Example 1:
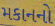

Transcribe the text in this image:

મકાનનો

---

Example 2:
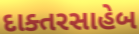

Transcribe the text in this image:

દાક્તરસાહેબ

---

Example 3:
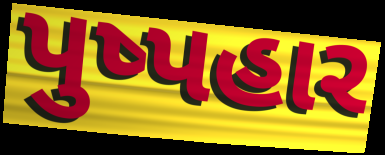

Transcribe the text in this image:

પુષ્પહાર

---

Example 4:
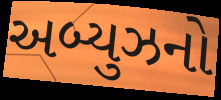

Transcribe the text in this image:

અબ્યુઝનો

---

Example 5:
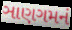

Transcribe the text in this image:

ઞાણગમનં